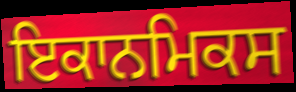
ਇਕਾਨਮਿਕਸ